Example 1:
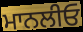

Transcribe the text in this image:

ਮਾਨਲੀਓ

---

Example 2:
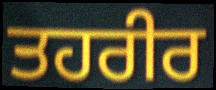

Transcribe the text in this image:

ਤਹਰੀਰ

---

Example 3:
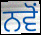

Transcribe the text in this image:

ਨਵੋਂ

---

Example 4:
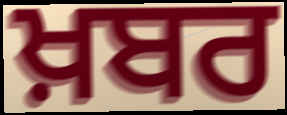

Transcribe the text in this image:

ਖ਼ਬਰ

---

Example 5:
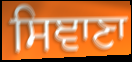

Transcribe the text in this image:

ਸਿਞਾਣਾ